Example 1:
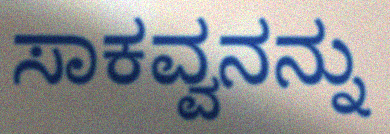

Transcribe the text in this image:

ಸಾಕವ್ವನನ್ನು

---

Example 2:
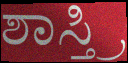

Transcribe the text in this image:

ಶಾಸ್ತ್ರಿ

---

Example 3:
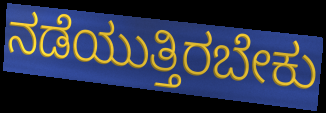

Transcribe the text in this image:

ನಡೆಯುತ್ತಿರಬೇಕು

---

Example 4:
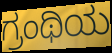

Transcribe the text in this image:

ಗ್ರಂಥಿಯ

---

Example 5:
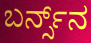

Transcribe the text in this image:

ಬರ್ನ್ಸ್‌ನ